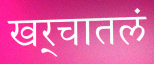
खर्चातलं